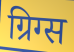
ग्रिग्स